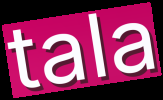
tala